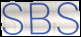
SBS